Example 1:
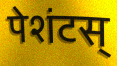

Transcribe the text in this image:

पेशंटस्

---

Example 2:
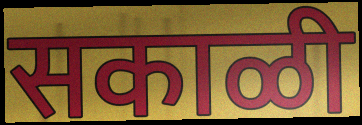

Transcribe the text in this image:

सकाळी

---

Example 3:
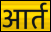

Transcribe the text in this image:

आर्त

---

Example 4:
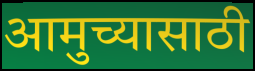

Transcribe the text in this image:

आमुच्यासाठी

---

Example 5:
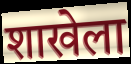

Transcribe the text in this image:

शाखेला